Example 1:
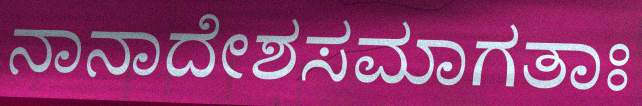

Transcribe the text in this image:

ನಾನಾದೇಶಸಮಾಗತಾಃ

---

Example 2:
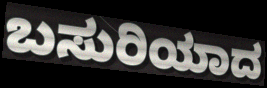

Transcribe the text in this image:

ಬಸುರಿಯಾದ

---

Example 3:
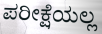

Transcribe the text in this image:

ಪರೀಕ್ಷೆಯಲ್ಲ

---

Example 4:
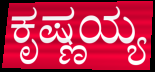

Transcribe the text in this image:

ಕೃಷ್ಣಯ್ಯ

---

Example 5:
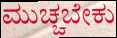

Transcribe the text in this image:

ಮುಚ್ಚಬೇಕು